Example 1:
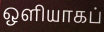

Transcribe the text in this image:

ஒளியாகப்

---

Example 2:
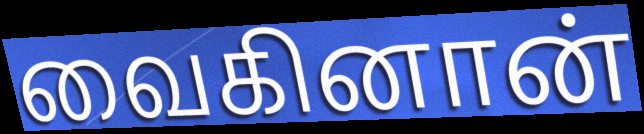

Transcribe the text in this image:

வைகினான்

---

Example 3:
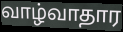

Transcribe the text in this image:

வாழ்வாதார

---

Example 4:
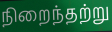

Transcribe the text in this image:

நிறைந்தற்று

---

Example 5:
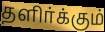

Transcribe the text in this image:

தளிர்க்கும்